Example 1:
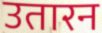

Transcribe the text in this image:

उतारन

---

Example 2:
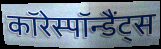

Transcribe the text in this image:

कॉरेस्पॉन्डैंट्स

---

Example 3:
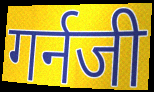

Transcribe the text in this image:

गर्नजी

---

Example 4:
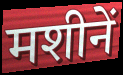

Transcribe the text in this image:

मशीनें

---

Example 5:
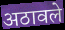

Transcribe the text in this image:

अठावले